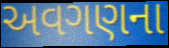
અવગણના